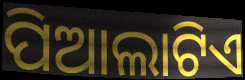
ପିଆଲାଟିଏ